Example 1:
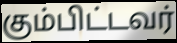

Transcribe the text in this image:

கும்பிட்டவர்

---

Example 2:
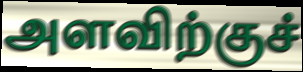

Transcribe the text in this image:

அளவிற்குச்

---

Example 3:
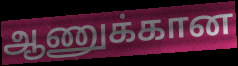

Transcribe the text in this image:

ஆணுக்கான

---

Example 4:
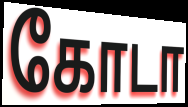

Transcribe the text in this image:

கோடா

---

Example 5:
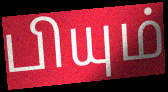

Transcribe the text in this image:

பியும்